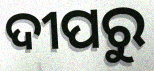
ଦୀପରୁ